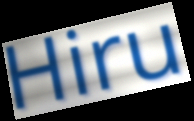
Hiru